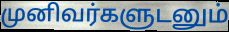
முனிவர்களுடனும்